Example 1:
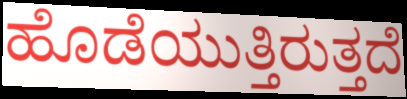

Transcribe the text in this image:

ಹೊಡೆಯುತ್ತಿರುತ್ತದೆ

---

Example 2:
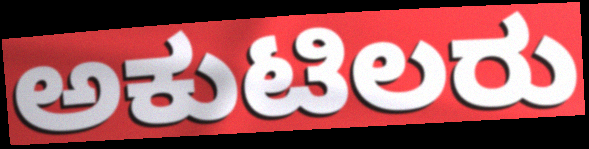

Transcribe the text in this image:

ಅಕುಟಿಲರು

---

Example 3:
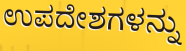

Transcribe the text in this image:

ಉಪದೇಶಗಳನ್ನು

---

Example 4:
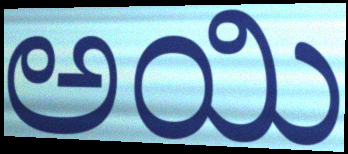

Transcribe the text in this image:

ಅಯಿ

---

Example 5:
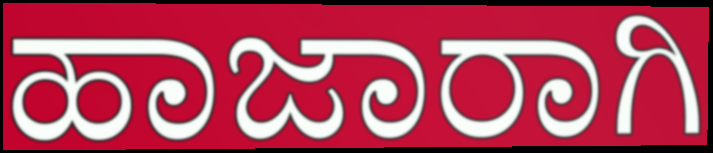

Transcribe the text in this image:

ಹಾಜಾರಾಗಿ